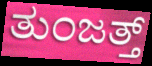
ತುಂಜತ್ತ್